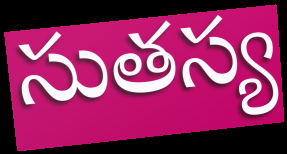
సుతస్య